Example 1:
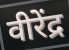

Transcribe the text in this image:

वीरेंद्र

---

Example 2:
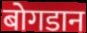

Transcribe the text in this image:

बोगडान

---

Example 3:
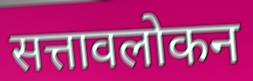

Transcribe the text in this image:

सत्तावलोकन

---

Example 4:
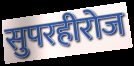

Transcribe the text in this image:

सुपरहीरोज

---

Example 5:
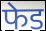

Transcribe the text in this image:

फेड